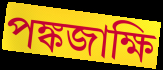
পঙ্কজাক্ষি